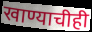
खाण्याचीही